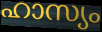
ഹാസ്യം